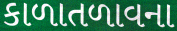
કાળાતળાવના